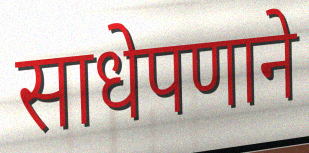
साधेपणाने